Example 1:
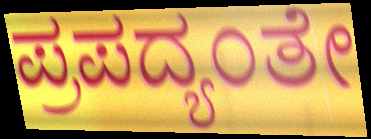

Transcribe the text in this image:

ಪ್ರಪದ್ಯಂತೇ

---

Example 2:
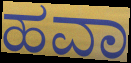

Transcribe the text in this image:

ಹವಾ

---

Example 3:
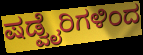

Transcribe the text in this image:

ಷಡ್ವೈರಿಗಳಿಂದ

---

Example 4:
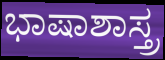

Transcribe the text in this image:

ಭಾಷಾಶಾಸ್ತ್ರ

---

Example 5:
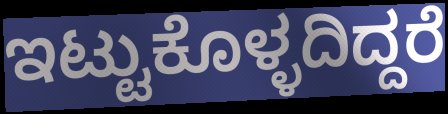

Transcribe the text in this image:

ಇಟ್ಟುಕೊಳ್ಳದಿದ್ದರೆ